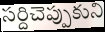
సర్దిచెప్పుకుని